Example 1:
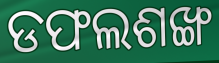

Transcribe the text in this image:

ଡଫଲଶଙ୍ଖ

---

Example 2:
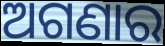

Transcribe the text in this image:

ଅଗଣାର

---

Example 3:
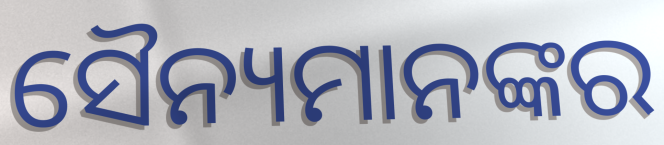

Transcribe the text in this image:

ସୈନ୍ୟମାନଙ୍କର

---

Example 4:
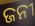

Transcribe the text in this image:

ଜନୀ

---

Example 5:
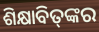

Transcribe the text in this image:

ଶିକ୍ଷାବିତ୍‌ଙ୍କର